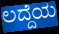
ಲದ್ದೆಯ